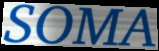
SOMA